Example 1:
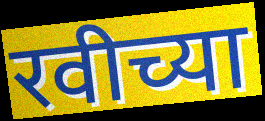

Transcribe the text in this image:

रवीच्या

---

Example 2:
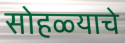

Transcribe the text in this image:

सोहळ्याचे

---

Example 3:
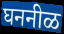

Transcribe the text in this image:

घननीळ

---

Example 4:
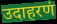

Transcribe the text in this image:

उदाहरणं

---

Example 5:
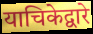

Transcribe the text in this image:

याचिकेद्वारे